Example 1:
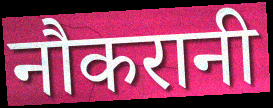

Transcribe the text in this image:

नौकरानी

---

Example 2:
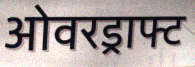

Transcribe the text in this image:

ओवरड्राफ्ट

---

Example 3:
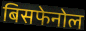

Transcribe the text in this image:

बिसफेनोल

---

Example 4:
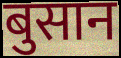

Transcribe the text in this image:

बुसान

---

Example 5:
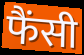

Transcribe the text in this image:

फैंसी